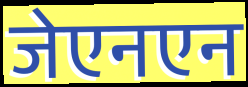
जेएनएन